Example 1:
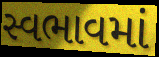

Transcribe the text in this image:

સ્વભાવમાં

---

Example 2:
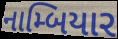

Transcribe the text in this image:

નામ્બિયાર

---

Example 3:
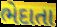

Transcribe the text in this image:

ભેદાતા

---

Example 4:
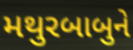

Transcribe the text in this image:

મથુરબાબુને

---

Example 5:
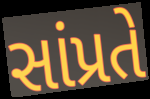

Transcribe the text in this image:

સાંપ્રતે